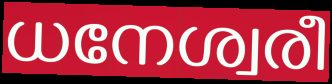
ധനേശ്വരീ